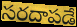
సరదాపడే